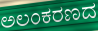
ಅಲಂಕರಣದ